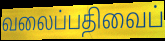
வலைப்பதிவைப்